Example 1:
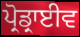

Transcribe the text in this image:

ਪ੍ਰੋਡ੍ਰਾਈਵ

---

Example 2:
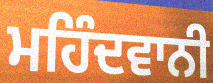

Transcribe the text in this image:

ਮਹਿੰਦਵਾਨੀ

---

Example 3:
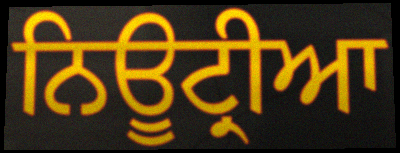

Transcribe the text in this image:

ਨਿਊਟ੍ਰੀਆ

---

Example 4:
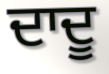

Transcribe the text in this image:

ਦਾਦੂ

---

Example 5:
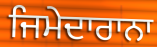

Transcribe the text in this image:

ਜਿਮੇਦਾਰਾਨਾ